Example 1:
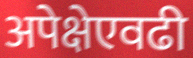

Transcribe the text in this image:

अपेक्षेएवढी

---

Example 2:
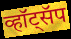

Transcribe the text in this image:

व्हॉट्सॅप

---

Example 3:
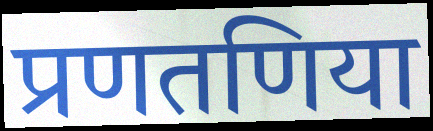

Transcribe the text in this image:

प्रणतणिया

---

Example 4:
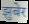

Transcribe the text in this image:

झुबेर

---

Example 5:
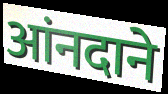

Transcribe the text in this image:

आंनदाने